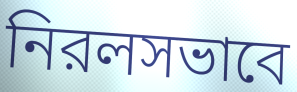
নিরলসভাবে